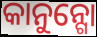
କାନୁନ୍ଗୋ